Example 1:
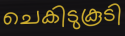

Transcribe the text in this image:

ചെകിടുകൂടി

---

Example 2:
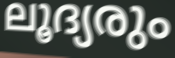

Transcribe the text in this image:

ലൂദ്യരും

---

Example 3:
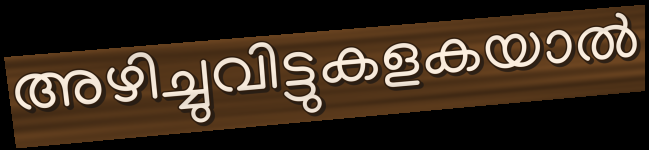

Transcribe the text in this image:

അഴിച്ചുവിട്ടുകളകയാൽ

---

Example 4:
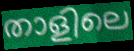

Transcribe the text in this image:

താളിലെ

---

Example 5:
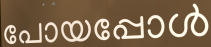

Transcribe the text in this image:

പോയപ്പോൾ